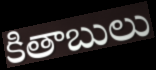
కితాబులు